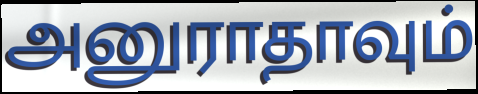
அனுராதாவும்